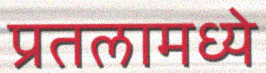
प्रतलामध्ये